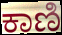
ಕಾಣಿ